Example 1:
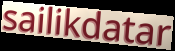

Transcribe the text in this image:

sailikdatar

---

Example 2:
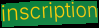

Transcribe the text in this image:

inscription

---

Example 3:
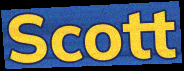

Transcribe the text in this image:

Scott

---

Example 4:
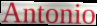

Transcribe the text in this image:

Antonio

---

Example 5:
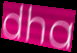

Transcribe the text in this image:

dha